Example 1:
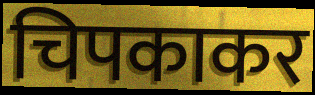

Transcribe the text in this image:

चिपकाकर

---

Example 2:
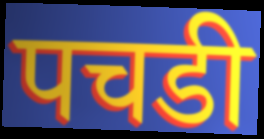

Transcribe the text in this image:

पचडी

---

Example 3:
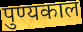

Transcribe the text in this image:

पुण्यकाल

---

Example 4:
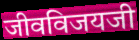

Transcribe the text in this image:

जीवविजयजी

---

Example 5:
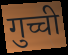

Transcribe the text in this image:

गुच्ची